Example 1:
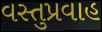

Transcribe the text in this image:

વસ્તુપ્રવાહ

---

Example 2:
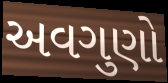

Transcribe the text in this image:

અવગુણો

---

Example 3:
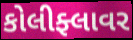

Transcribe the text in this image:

કોલીફ્લાવર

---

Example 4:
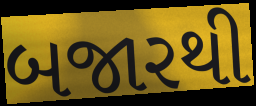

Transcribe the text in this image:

બજારથી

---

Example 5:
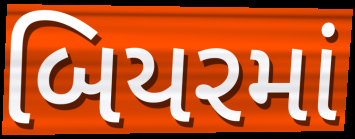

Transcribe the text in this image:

બિયરમાં